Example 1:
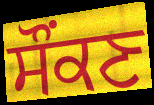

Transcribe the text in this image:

ਸੌਂਕਣ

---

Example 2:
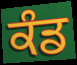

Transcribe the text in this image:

ਕੰਡ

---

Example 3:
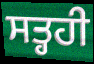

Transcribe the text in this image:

ਸਤ੍ਹਹੀ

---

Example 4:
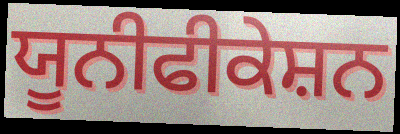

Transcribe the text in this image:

ਯੂਨੀਫੀਕੇਸ਼ਨ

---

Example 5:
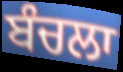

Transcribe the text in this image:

ਬੰਚਲਾ